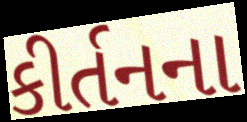
કીર્તનના